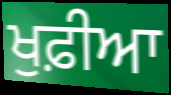
ਖੁਫ਼ੀਆ